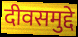
दीवसमुद्दे